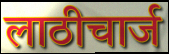
लाठीचार्ज